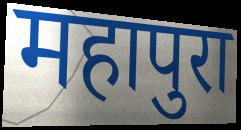
महापुरा